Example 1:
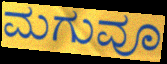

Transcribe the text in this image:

ಮಗುವೂ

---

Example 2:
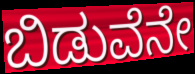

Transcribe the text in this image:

ಬಿಡುವೆನೇ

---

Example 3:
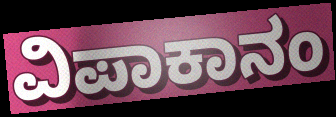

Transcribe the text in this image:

ವಿಪಾಕಾನಂ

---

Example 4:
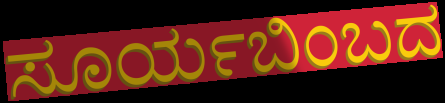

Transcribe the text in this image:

ಸೂರ್ಯಬಿಂಬದ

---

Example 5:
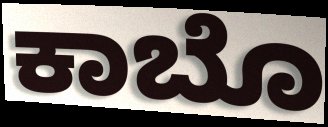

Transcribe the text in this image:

ಕಾಬೊ